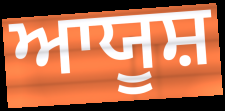
ਆਯੂਸ਼